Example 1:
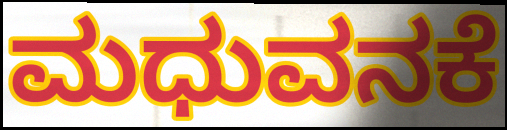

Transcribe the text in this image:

ಮಧುವನಕೆ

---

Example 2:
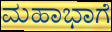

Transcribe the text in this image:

ಮಹಾಭಾಗೆ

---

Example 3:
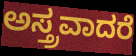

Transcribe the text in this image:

ಅಸ್ತ್ರವಾದರೆ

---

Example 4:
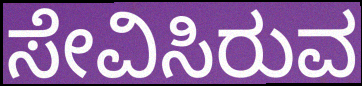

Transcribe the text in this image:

ಸೇವಿಸಿರುವ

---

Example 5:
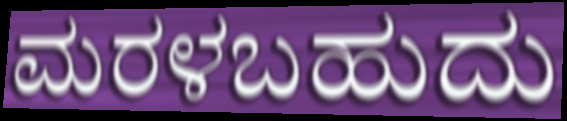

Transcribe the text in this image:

ಮರಳಬಹುದು